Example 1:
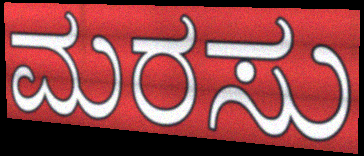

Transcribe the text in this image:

ಮರಸು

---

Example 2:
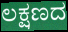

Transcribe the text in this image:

ಲಕ್ಷಣದ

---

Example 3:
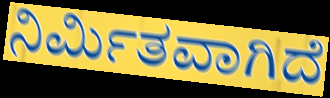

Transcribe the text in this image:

ನಿರ್ಮಿತವಾಗಿದೆ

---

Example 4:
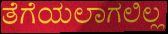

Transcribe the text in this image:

ತೆಗೆಯಲಾಗಲಿಲ್ಲ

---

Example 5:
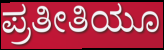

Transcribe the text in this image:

ಪ್ರತೀತಿಯೂ